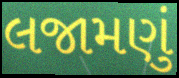
લજામણું